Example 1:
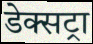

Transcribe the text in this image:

डेक्सट्रा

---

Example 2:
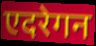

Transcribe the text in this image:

एदरेगन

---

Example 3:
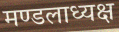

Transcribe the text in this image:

मण्डलाध्यक्ष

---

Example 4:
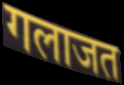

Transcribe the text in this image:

गलाजत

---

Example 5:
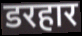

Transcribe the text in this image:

डरहार